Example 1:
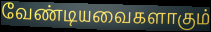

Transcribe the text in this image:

வேண்டியவைகளாகும்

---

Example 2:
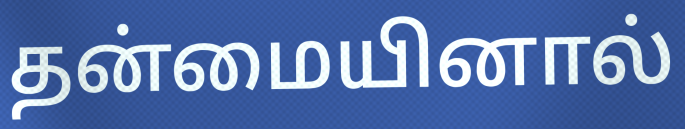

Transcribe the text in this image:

தன்மையினால்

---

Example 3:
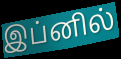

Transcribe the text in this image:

இப்னில்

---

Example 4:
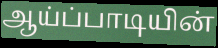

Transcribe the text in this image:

ஆய்ப்பாடியின்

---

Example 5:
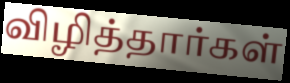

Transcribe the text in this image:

விழித்தார்கள்